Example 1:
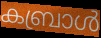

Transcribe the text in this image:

കബ്രാൾ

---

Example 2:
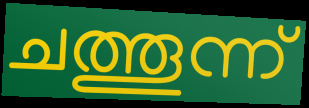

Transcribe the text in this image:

ചത്തൂന്ന്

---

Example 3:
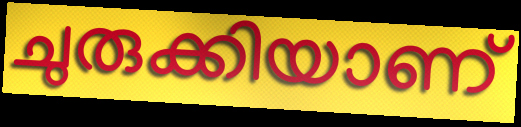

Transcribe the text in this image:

ചുരുക്കിയാണ്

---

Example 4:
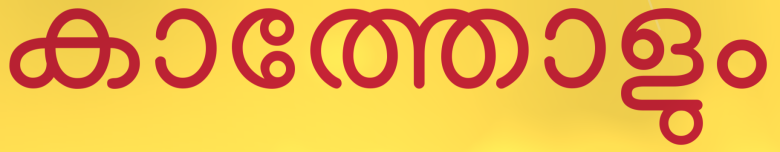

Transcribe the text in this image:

കാത്തോളും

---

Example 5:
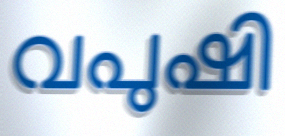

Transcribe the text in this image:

വപുഷി